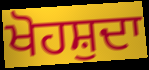
ਖੋਹਸ਼ੁਦਾ